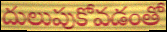
దులుపుకోవడంతో